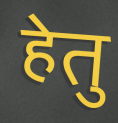
हेतु